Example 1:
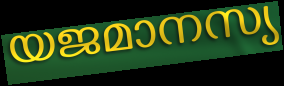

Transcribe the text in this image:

യജമാനസ്യ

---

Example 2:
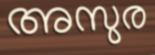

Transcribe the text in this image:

അസുര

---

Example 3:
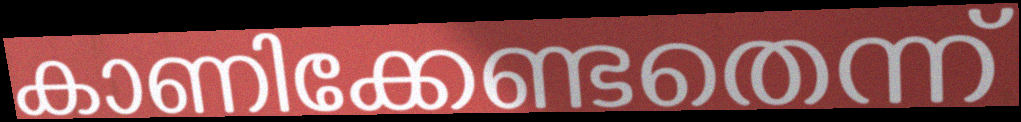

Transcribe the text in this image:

കാണിക്കേണ്ടതെന്ന്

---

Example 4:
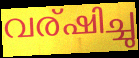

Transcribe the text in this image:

വര്ഷിച്ചു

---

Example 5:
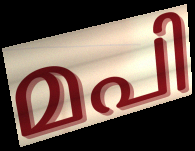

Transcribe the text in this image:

മപി